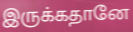
இருக்கதானே